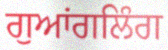
ਗੁਆਂਗਲਿੰਗ